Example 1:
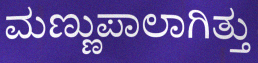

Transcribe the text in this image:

ಮಣ್ಣುಪಾಲಾಗಿತ್ತು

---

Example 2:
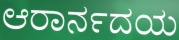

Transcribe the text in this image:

ಆರಾರ್ನದಯ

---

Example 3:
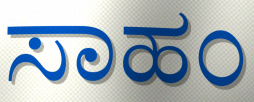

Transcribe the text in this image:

ಸಾಹಂ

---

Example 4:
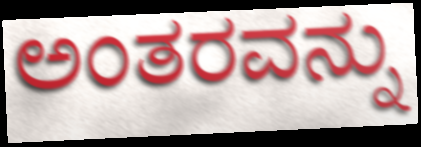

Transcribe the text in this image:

ಅಂತರವನ್ನು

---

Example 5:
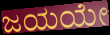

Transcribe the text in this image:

ಜಯಯೇ